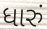
ધારું